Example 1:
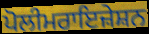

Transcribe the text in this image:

ਪੋਲੀਮਰਾਇਜ਼ੇਸ਼ਨ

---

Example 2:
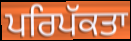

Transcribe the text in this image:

ਪਰਿਪੱਕਤਾ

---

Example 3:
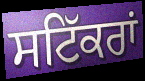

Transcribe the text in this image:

ਸਟਿੱਕਰਾਂ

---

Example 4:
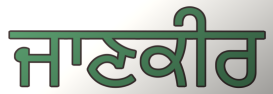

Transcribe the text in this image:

ਜਾਣਕੀਰ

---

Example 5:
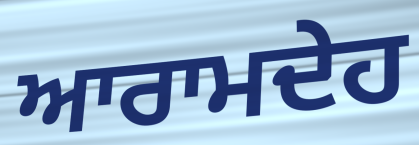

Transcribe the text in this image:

ਆਰਾਮਦੇਹ